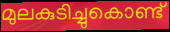
മുലകുടിച്ചുകൊണ്ട്